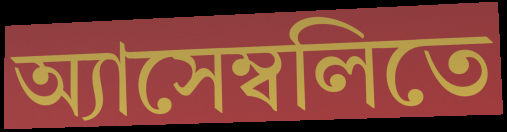
অ্যাসেম্বলিতে